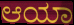
ಆಯಾ